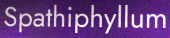
Spathiphyllum